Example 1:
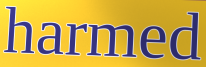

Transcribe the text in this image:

harmed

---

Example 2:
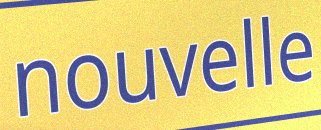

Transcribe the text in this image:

nouvelle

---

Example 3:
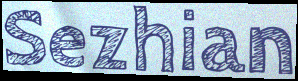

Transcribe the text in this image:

Sezhian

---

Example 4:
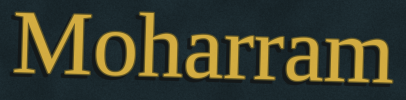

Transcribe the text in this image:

Moharram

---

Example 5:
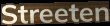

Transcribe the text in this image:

Streeten